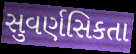
સુવર્ણસિકતા